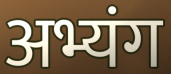
अभ्यंग